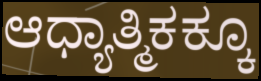
ಆಧ್ಯಾತ್ಮಿಕಕ್ಕೂ